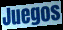
Juegos